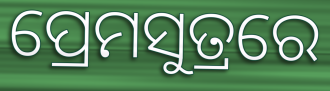
ପ୍ରେମସୁତ୍ରରେ